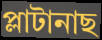
প্লাটানাছ